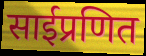
साईप्रणित